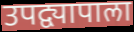
उपद्व्यापाला